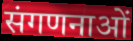
संगणनाओं